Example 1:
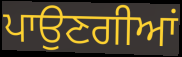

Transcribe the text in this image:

ਪਾਉਣਗੀਆਂ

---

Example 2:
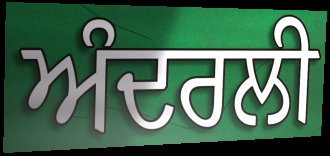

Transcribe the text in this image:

ਅੰਦਰਲੀ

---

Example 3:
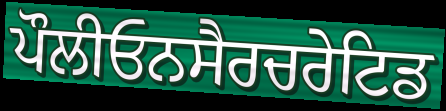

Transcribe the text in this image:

ਪੌਲੀਓਨਸੈਰਚਰੇਟਿਡ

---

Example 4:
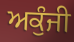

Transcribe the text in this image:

ਅਕੁੰਜੀ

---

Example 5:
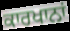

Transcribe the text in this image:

ਕਾਰਖਾਨਾਂ